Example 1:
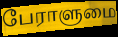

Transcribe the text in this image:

பேராளுமை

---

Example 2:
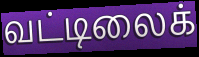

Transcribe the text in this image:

வட்டிலைக்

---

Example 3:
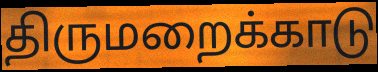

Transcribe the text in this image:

திருமறைக்காடு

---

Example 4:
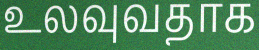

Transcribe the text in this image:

உலவுவதாக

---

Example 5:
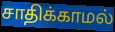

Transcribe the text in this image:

சாதிக்காமல்